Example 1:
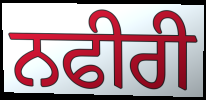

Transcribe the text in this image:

ਨਫੀਰੀ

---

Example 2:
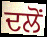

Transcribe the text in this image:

ਦਲੋਂ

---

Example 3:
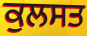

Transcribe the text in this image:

ਕੁਲਸਤ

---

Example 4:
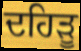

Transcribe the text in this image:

ਦਹਿੜੂ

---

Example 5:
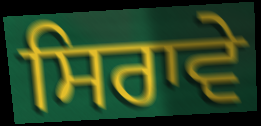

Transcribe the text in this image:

ਸਿਰਾਵੇ